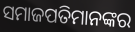
ସମାଜପତିମାନଙ୍କର